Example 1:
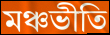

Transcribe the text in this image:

মঞ্চভীতি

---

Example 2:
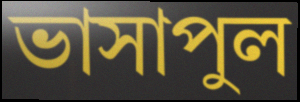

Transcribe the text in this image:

ভাসাপুল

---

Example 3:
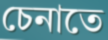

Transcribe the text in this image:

চেনাতে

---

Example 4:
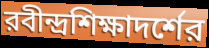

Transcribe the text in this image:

রবীন্দ্রশিক্ষাদর্শের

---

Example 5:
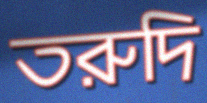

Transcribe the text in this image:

তরুদি